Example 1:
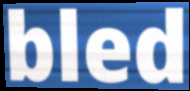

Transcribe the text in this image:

bled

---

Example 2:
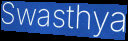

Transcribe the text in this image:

Swasthya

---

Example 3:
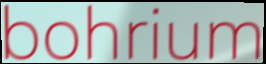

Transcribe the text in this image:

bohrium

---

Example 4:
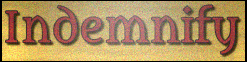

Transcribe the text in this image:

Indemnify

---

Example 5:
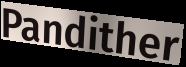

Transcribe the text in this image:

Pandither